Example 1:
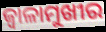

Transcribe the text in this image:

ଜ୍ୱାଳାମୁଖୀର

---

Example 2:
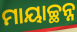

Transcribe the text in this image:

ମାୟାଚ୍ଛନ୍ନ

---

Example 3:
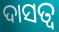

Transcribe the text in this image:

ଦାସତ୍ଵ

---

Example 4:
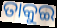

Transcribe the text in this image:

ତାକୁଇ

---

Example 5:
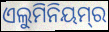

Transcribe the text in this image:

ଏଲୁମିନିୟମ୍‌ର